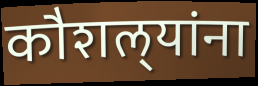
कौशल्यांना